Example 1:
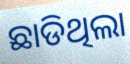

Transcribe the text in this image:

ଛାଡିଥିଲା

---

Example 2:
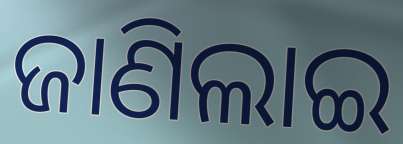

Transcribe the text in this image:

ଜାଣିଲାଇ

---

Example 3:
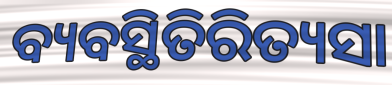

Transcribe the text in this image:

ବ୍ୟବସ୍ଥିତିରିତ୍ୟସା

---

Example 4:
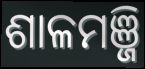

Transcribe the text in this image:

ଶାଳମଞ୍ଜି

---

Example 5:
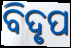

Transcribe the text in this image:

ବିଦୃପ